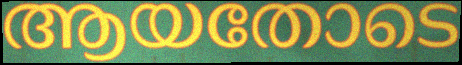
ആയതോടെ